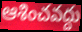
ఆశించవద్దు